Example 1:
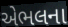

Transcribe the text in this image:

એભલના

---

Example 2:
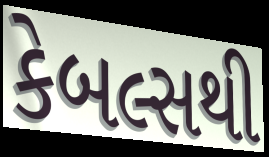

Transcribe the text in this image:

કેબલ્સથી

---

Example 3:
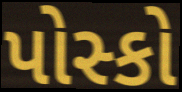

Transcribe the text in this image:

પોસ્કો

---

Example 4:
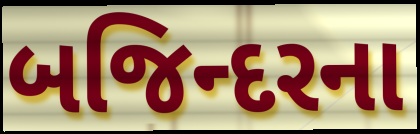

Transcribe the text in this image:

બજિન્દરના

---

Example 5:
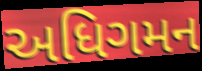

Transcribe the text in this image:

અધિગમન